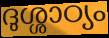
ദുശ്ശാഠ്യം